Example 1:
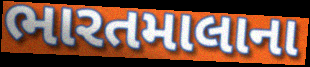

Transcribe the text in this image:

ભારતમાલાના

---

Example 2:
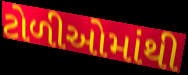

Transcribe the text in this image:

ટોળીઓમાંથી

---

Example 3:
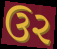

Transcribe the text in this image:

ઉર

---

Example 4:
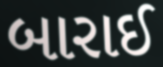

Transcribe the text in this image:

બારાઈ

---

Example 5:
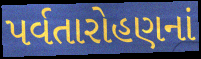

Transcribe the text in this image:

પર્વતારોહણનાં